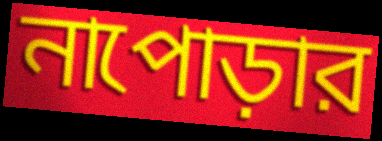
নাপোড়ার